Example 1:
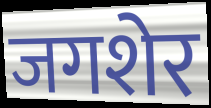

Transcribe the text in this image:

जगशेर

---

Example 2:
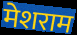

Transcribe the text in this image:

मेशराम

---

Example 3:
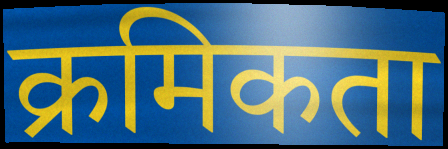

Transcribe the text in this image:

क्रमिकता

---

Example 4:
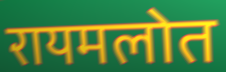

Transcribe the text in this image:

रायमलोत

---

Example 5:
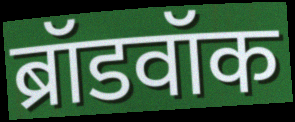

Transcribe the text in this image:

ब्रॉडवॉक